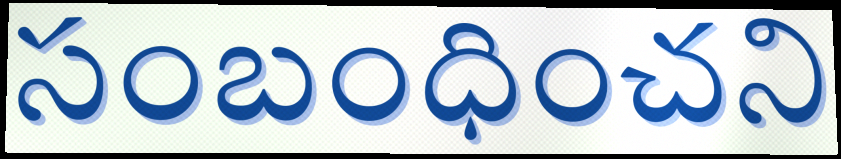
సంబంధించని